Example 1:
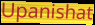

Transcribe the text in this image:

Upanishat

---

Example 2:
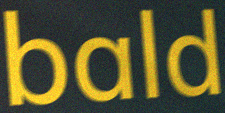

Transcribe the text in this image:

bald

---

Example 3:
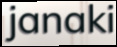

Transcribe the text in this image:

janaki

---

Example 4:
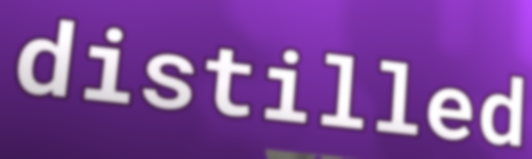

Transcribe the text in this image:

distilled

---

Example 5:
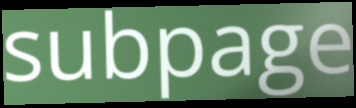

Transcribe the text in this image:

subpage